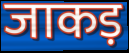
जाकड़